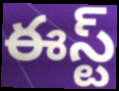
ఈస్ట్